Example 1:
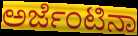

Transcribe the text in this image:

ಅರ್ಜೆಂಟಿನಾ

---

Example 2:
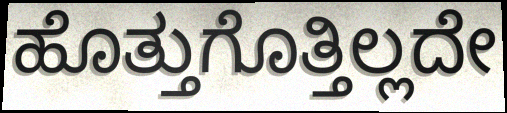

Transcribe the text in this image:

ಹೊತ್ತುಗೊತ್ತಿಲ್ಲದೇ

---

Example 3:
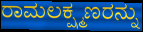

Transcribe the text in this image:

ರಾಮಲಕ್ಷ್ಮಣರನ್ನು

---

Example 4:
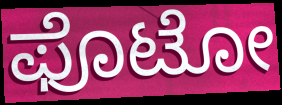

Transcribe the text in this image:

ಫೊಟೋ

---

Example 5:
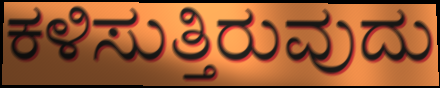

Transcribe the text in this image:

ಕಳಿಸುತ್ತಿರುವುದು